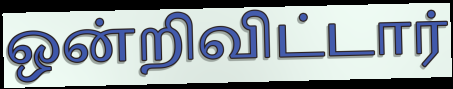
ஒன்றிவிட்டார்